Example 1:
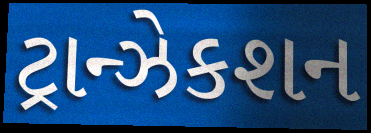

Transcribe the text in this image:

ટ્રાન્ઝેકશન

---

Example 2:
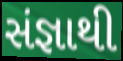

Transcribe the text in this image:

સંજ્ઞાથી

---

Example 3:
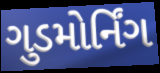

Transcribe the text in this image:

ગુડમોર્નિંગ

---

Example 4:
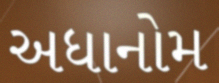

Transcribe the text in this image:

અધાનોમ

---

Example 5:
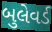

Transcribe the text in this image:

બુલેવર્ડ